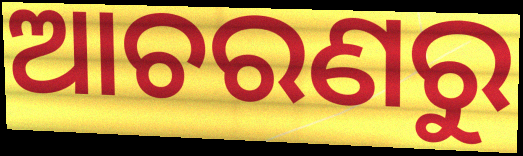
ଆଚରଣରୁ